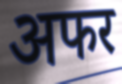
अफर